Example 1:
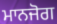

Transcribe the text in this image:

ਮਾਨਜੋਗ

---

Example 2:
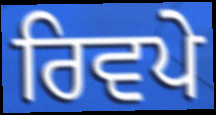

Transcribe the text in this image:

ਰਿਵਪੇ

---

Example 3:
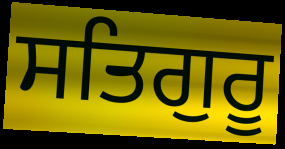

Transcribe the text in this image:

ਸਤਿਗੁਰੂ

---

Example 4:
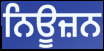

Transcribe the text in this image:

ਨਿਊਜ਼ਨ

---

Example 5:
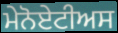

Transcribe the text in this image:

ਮੇਨੋਏਟੀਅਸ